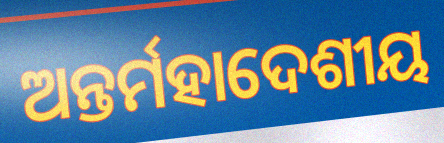
ଅନ୍ତର୍ମହାଦେଶୀୟ